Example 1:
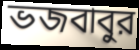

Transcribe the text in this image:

ভজবাবুর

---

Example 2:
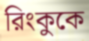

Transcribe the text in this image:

রিংকুকে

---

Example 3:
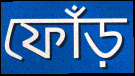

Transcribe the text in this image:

ফোঁড়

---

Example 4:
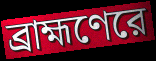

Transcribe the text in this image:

ব্রাহ্মণেরে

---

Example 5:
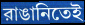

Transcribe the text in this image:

রাঙানিতেই